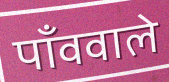
पाँववाले